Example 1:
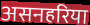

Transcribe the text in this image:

असनहरिया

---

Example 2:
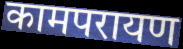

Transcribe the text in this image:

कामपरायण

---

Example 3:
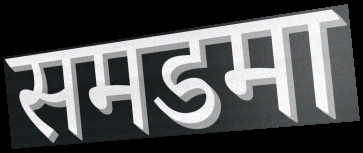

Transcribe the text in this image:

समडमा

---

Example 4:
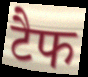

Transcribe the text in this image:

टैफ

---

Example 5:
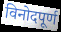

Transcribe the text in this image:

विनोदपूर्ण